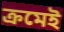
ক্রমেই